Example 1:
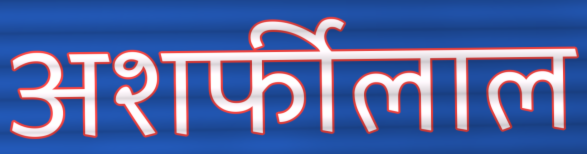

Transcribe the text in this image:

अशर्फीलाल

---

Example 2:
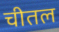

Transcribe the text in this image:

चीतल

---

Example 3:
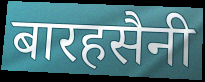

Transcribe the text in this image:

बारहसैनी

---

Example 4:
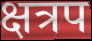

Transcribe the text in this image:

क्षत्रप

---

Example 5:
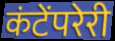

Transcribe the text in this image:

कंटेंपरेरी